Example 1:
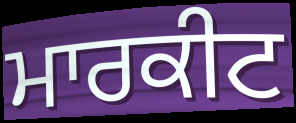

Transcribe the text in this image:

ਮਾਰਕੀਟ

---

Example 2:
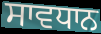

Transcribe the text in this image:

ਸਾਵਧਾਨ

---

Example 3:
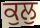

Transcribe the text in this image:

ਕੁਲੁ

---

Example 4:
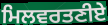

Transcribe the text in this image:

ਮਿਲਵਰਤਣੀਏ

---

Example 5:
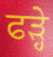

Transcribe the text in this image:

ਫੜ੍ਹੇ